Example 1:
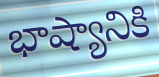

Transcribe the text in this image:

భాష్యానికి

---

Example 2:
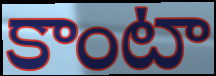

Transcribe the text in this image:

కాంటా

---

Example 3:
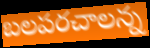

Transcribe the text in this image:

బలపరచాలన్న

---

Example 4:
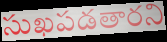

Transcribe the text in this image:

సుఖపడతారని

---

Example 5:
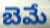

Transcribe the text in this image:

బెమే